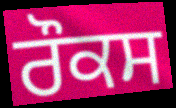
ਰੌਕਸ